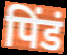
पिंडं